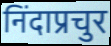
निंदाप्रचुर